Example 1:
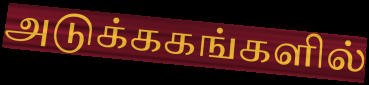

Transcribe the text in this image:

அடுக்ககங்களில்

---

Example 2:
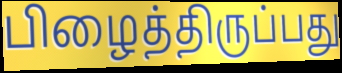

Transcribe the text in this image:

பிழைத்திருப்பது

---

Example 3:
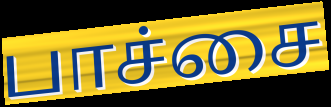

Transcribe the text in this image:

பாச்சை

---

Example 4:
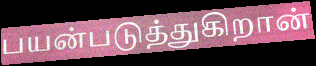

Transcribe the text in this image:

பயன்படுத்துகிறான்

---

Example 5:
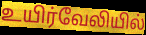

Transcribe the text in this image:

உயிர்வேலியில்